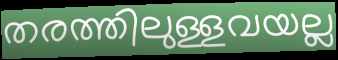
തരത്തിലുള്ളവയല്ല